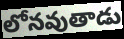
లోనవుతాడు